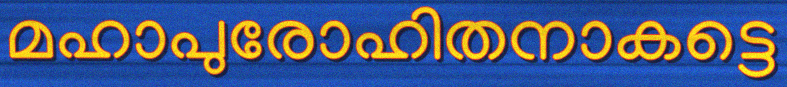
മഹാപുരോഹിതനാകട്ടെ